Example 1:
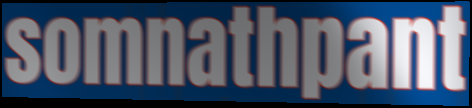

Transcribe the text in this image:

somnathpant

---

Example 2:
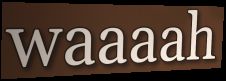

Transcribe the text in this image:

waaaah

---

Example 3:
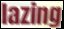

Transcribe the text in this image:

lazing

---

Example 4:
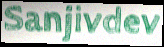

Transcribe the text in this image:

Sanjivdev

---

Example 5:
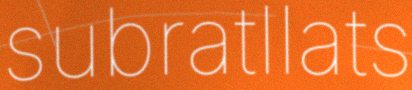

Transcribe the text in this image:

subratllats